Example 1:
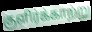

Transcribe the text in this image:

குளிர்க்காற்று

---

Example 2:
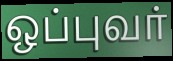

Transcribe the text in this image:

ஒப்புவர்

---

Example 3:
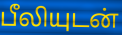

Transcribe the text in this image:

பீலியுடன்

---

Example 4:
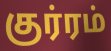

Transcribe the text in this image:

குர்ரம்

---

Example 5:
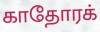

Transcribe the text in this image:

காதோரக்